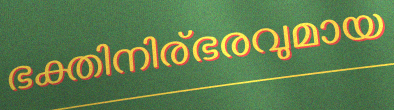
ഭക്തിനിര്ഭരവുമായ